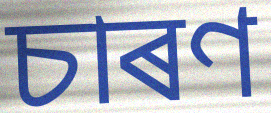
চাৰণ